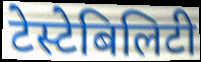
टेस्टेबिलिटी